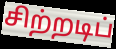
சிற்றடிப்